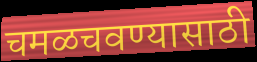
चमळचवण्यासाठी